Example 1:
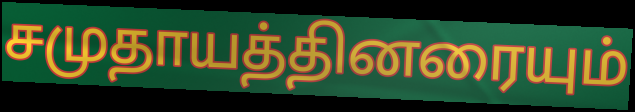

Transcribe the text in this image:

சமுதாயத்தினரையும்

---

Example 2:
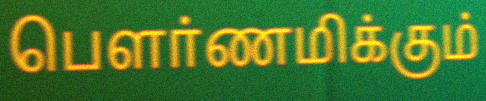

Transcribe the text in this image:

பௌர்ணமிக்கும்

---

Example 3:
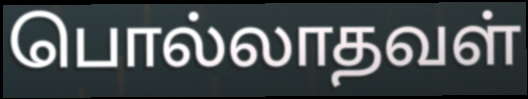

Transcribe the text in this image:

பொல்லாதவள்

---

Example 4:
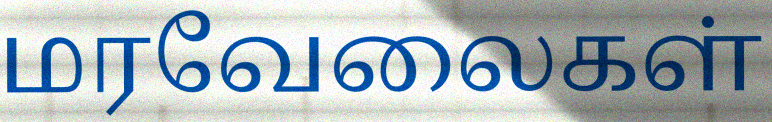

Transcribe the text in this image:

மரவேலைகள்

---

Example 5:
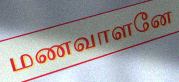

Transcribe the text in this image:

மணவாளனே